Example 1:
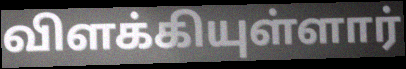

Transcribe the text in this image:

விளக்கியுள்ளார்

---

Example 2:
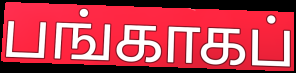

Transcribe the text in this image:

பங்காகப்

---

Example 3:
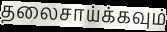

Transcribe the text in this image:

தலைசாய்க்கவும்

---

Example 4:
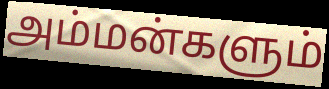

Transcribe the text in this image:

அம்மன்களும்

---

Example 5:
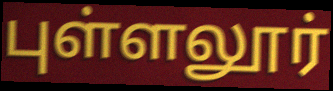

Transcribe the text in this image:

புள்ளலூர்